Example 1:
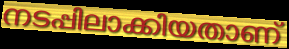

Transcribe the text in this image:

നടപ്പിലാക്കിയതാണ്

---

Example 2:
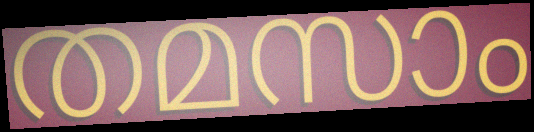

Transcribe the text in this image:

തമസാം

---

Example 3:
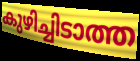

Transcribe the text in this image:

കുഴിച്ചിടാത്ത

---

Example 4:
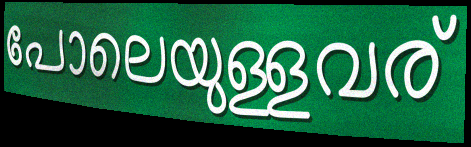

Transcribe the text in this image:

പോലെയുള്ളവര്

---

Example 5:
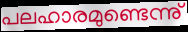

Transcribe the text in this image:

പലഹാരമുണ്ടെന്നു്